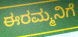
ಈರಮ್ಮನಿಗೆ